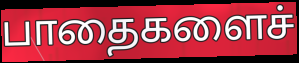
பாதைகளைச்